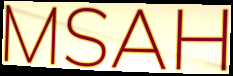
MSAH